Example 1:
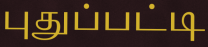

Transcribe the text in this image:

புதுப்பட்டி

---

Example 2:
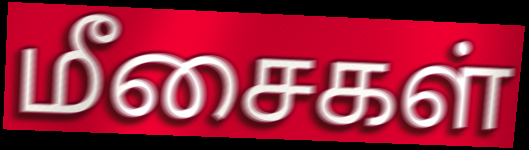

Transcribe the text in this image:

மீசைகள்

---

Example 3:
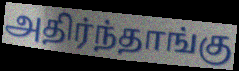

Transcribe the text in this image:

அதிர்ந்தாங்கு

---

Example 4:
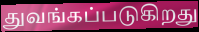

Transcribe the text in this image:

துவங்கப்படுகிறது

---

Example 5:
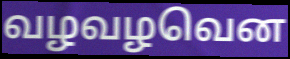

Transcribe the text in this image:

வழவழவென